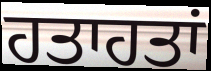
ਹਤਾਹਤਾਂ